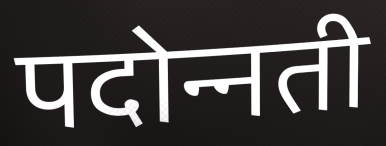
पदोन्‍नती